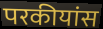
परकीयांस